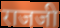
राजजी